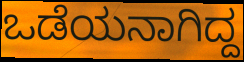
ಒಡೆಯನಾಗಿದ್ದ